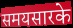
समयसारके